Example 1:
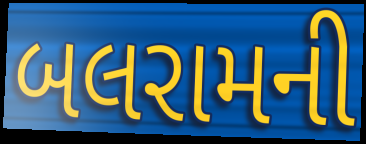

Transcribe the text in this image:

બલરામની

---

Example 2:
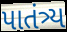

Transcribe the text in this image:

પાતંત્ર્ય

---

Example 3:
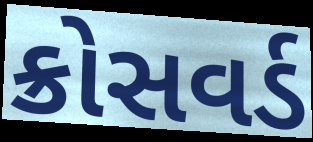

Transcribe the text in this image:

ક્રોસવર્ડ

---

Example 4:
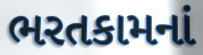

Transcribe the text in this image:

ભરતકામનાં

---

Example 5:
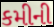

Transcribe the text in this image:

કમીની